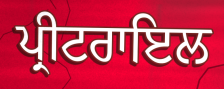
ਪ੍ਰੀਟਰਾਇਲ